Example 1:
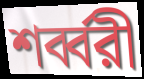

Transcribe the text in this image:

শর্ব্বরী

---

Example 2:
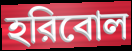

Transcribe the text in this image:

হরিবোল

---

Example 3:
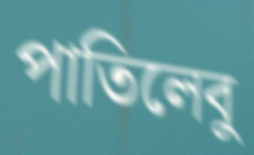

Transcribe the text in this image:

পাতিলেবু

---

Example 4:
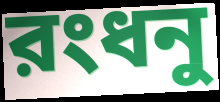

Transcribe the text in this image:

রংধনু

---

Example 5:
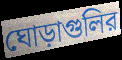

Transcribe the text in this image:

ঘোড়াগুলির